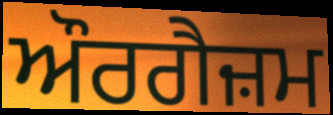
ਔਰਗੈਜ਼ਮ